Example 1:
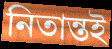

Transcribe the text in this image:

নিতান্তই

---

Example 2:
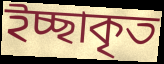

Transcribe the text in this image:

ইচ্ছাকৃত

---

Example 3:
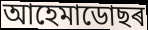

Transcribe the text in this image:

আহেমাডোছৰ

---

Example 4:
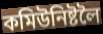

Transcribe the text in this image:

কমিউনিষ্টলৈ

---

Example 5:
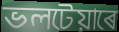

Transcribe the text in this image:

ভলটেয়াৰে